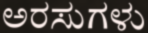
ಅರಸುಗಳು